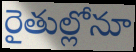
రైతుల్లోనూ